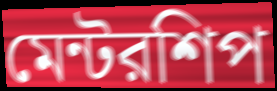
মেন্টরশিপ